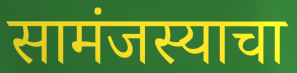
सामंजस्याचा